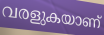
വരളുകയാണ്